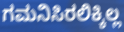
ಗಮನಿಸಿರಲಿಕ್ಕಿಲ್ಲ